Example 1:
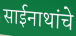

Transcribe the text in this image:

साईनाथांचे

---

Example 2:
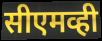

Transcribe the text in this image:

सीएमव्ही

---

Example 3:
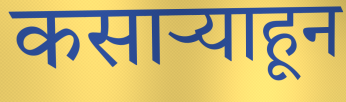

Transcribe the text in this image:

कसाऱ्याहून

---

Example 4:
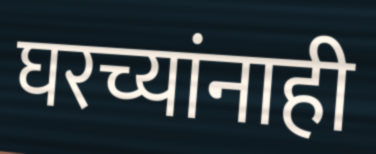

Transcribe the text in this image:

घरच्यांनाही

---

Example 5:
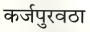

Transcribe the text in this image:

कर्जपुरवठा